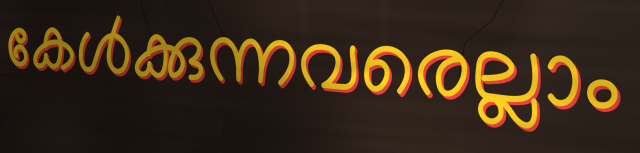
കേൾക്കുന്നവരെല്ലാം